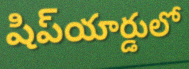
షిప్‌యార్డులో